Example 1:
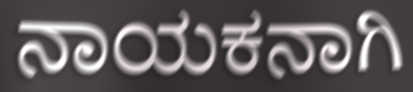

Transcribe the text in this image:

ನಾಯಕನಾಗಿ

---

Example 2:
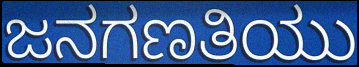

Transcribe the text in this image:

ಜನಗಣತಿಯು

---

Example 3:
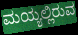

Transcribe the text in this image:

ಮಯ್ಯಲ್ಲಿರುವ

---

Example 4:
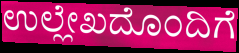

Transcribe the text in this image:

ಉಲ್ಲೇಖದೊಂದಿಗೆ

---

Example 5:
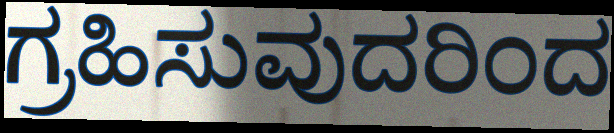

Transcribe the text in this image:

ಗ್ರಹಿಸುವುದರಿಂದ